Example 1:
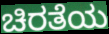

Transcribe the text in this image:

ಚಿರತೆಯ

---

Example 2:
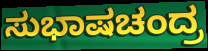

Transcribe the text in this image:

ಸುಭಾಷಚಂದ್ರ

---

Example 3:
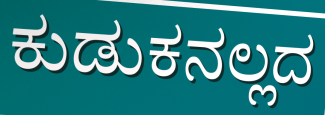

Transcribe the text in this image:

ಕುಡುಕನಲ್ಲದ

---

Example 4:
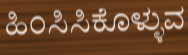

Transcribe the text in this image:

ಹಿಂಸಿಸಿಕೊಳ್ಳುವ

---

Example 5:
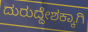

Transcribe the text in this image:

ದುರುದ್ದೇಶಕ್ಕಾಗಿ